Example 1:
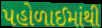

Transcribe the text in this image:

પહોળાઈમાંથી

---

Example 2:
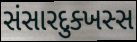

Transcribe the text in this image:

સંસારદુક્ખસ્સ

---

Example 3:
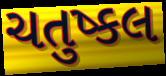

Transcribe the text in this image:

ચતુષ્કલ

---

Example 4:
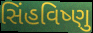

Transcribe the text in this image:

સિંહવિષ્ણુ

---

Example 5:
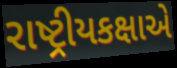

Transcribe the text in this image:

રાષ્ટ્રીયકક્ષાએ